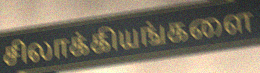
சிலாக்கியங்களை